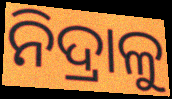
ନିଦ୍ରାଳୁ